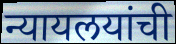
न्यायलयांची